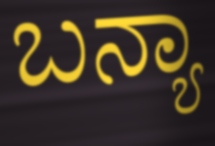
ಬನ್ಯಾ